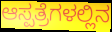
ಆಸ್ಪತ್ರೆಗಳಲ್ಲಿನ